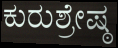
ಕುರುಶ್ರೇಷ್ಠ